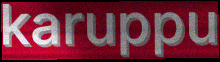
karuppu